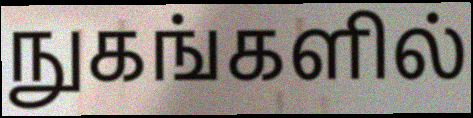
நுகங்களில்